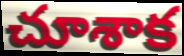
చూశాక